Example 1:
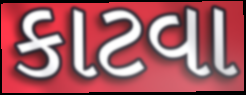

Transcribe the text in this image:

કાટવા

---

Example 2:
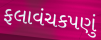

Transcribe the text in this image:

ફલાવંચકપણું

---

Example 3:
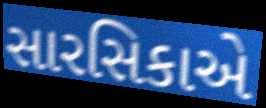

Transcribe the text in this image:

સારસિકાએ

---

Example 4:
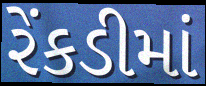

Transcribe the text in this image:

રેંકડીમાં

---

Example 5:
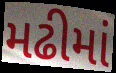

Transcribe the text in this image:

મઢીમાં